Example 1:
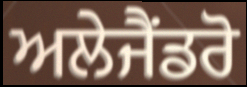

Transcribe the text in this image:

ਅਲੇਜੈਂਡਰੋ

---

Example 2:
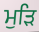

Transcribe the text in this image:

ਮੁੜਿ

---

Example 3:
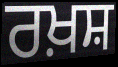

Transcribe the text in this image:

ਰਖ਼ਸ਼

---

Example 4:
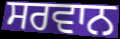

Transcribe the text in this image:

ਸਰਵਾਨ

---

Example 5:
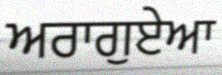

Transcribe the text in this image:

ਅਰਾਗੁਏਆ